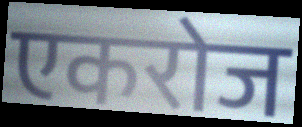
एकरोज